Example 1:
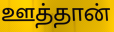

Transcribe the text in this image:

ஊத்தான்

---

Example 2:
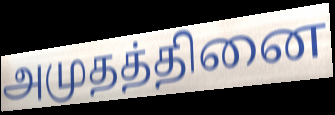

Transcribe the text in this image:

அமுதத்தினை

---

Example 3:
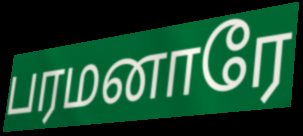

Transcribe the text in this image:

பரமனாரே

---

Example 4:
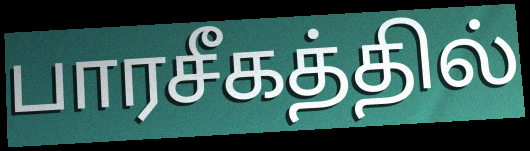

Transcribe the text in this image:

பாரசீகத்தில்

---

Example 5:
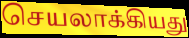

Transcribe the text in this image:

செயலாக்கியது